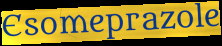
Esomeprazole